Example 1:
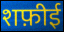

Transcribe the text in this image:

शफ़ीई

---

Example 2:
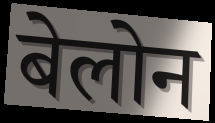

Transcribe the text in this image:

बेलोन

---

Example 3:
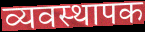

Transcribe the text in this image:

व्यवस्थापक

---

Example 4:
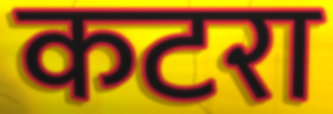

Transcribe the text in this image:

कटरा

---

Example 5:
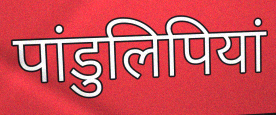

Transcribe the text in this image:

पांडुलिपियां